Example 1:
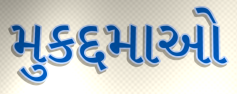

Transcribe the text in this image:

મુકદ્દમાઓ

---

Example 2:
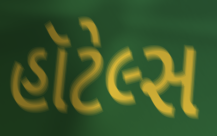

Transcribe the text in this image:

હૉટેલ્સ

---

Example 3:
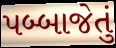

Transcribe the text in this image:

પબ્બાજેતું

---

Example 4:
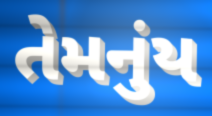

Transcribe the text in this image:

તેમનુંય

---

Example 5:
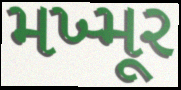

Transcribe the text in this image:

મખ્મૂર